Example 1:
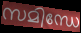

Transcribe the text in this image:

സമിന്ധേ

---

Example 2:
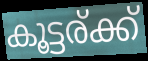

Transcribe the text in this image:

കൂട്ടര്ക്ക്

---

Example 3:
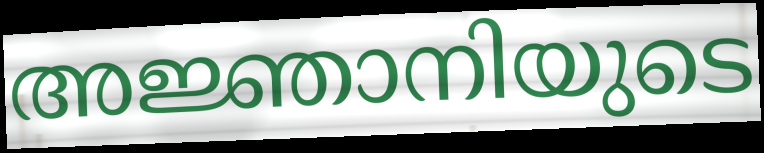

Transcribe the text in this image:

അജ്ഞാനിയുടെ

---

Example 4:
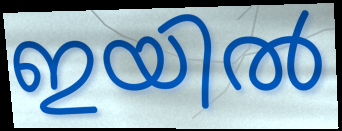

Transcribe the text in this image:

ഇയിൽ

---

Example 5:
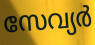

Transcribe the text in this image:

സേവ്യർ